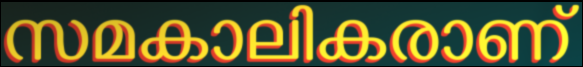
സമകാലികരാണ്